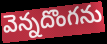
వెన్నదొంగను